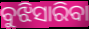
ବୁଝିସାରିବା